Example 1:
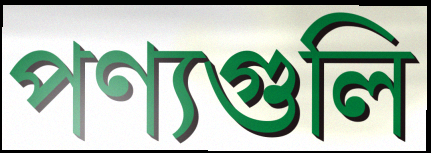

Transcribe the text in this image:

পণ্যগুলি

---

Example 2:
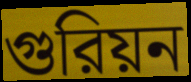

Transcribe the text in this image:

গুরিয়ন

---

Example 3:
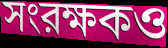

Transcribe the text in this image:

সংরক্ষকও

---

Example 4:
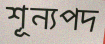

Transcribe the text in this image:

শূন্যপদ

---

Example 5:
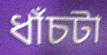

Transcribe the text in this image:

ধাঁচটা